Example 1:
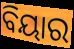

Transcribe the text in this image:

ବିୟାର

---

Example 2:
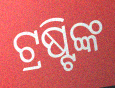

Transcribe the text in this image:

ଟ୍ରଷ୍ଟିଙ୍କ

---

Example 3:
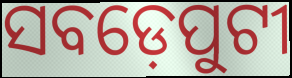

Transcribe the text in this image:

ସବଡ଼େପୁଟୀ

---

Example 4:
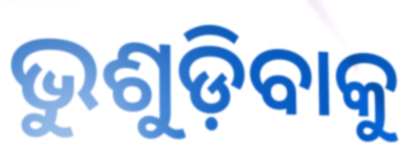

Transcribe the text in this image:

ଭୁଶୁଡ଼ିବାକୁ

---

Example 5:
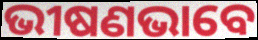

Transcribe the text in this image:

ଭୀଷଣଭାବେ